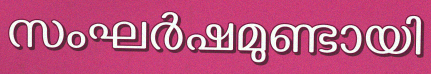
സംഘർഷമുണ്ടായി